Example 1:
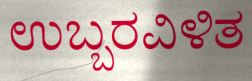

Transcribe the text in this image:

ಉಬ್ಬರವಿಳಿತ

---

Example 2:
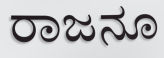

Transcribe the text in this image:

ರಾಜನೂ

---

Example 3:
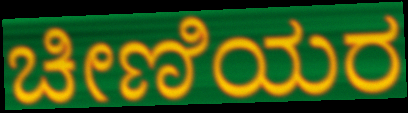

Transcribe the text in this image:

ಚೀಣಿಯರ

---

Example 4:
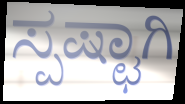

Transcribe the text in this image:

ಸ್ಪಷ್ಟಾಗಿ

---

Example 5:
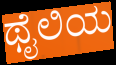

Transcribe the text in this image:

ಥೈಲಿಯ